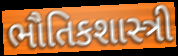
ભૌતિકશાસ્ત્રી